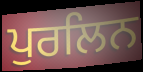
ਪੁਰਲਿਨ